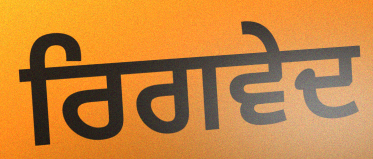
ਰਿਗਵੇਦ